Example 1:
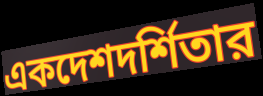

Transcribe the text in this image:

একদেশদর্শিতার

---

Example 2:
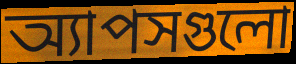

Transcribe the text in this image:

অ্যাপসগুলো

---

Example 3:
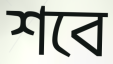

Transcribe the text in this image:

শবে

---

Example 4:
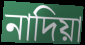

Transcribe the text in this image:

নাদিয়া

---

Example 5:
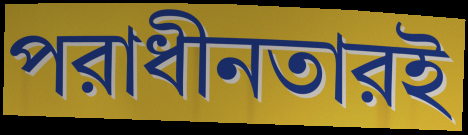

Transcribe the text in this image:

পরাধীনতারই